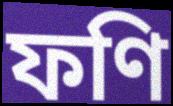
ফণি